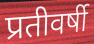
प्रतीवर्षी